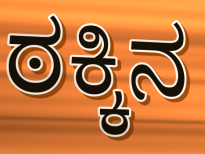
ಠಕ್ಕಿನ